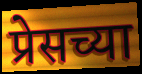
प्रेसच्या